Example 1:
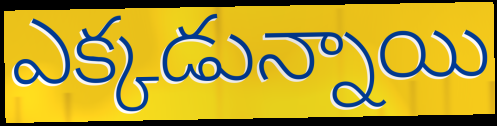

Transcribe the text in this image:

ఎక్కడున్నాయి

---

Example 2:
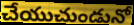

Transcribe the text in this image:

చేయుచుండునో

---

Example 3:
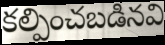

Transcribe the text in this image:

కల్పించబడినవి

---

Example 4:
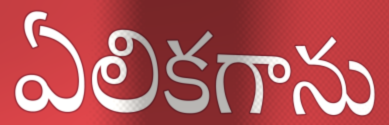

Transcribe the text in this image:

ఏలికగాను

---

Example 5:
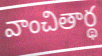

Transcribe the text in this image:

వాంచితార్థ